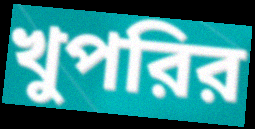
খুপরির